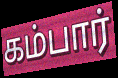
கம்பார்